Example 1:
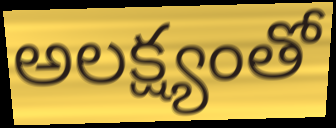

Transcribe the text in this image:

అలక్ష్యంతో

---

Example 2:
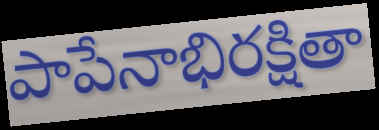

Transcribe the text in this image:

పాపేనాభిరక్షితా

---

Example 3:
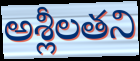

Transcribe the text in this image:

అశ్లీలతని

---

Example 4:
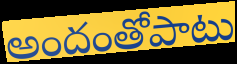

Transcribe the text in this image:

అందంతోపాటు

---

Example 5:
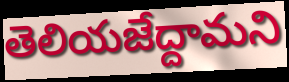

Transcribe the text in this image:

తెలియజేద్దామని